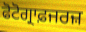
ਫੋਟੋਗ੍ਰਾਫ਼ਜਰਜ਼